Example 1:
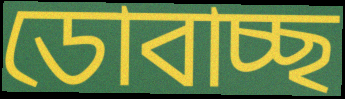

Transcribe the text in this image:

ডোবাচ্ছ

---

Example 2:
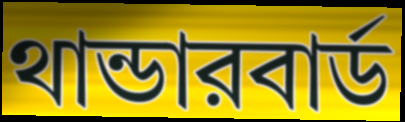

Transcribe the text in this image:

থান্ডারবার্ড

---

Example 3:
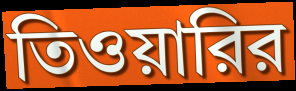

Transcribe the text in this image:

তিওয়ারির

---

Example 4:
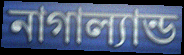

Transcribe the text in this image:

নাগাল্যান্ড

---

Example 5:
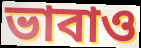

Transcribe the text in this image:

ভাবাও